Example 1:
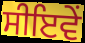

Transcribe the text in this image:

ਸੀਇਵੇਂ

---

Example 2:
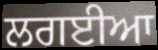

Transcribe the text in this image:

ਲਗਈਆ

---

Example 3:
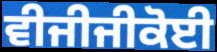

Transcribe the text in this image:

ਵੀਜੀਜੀਕੋਈ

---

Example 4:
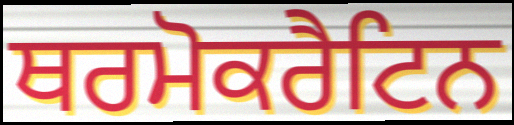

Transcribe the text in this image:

ਥਰਮੋਕਰੈਟਿਨ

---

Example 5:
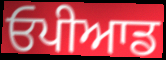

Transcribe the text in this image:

ਓਪੀਆਡ